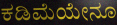
ಕಡಿಮೆಯೇನೂ